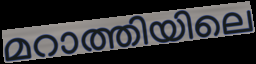
മറാത്തിയിലെ